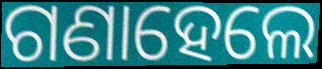
ଗଣାହେଲେ